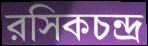
রসিকচন্দ্র